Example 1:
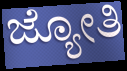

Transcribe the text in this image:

ಜ್ಯೋತಿ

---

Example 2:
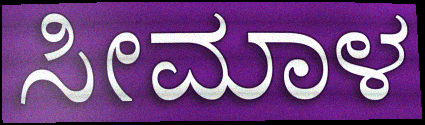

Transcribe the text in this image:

ಸೀಮಾಳ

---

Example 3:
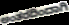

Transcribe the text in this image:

ಅಂತರದಿಂದಾಗಿ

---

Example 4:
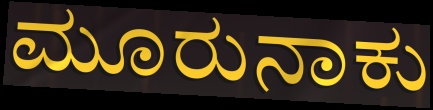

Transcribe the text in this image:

ಮೂರುನಾಕು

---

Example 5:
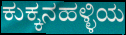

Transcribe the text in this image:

ಕುಕ್ಕನಹಳ್ಳಿಯ